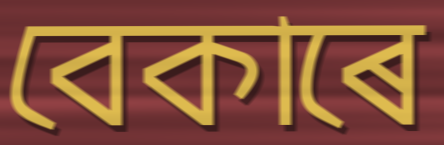
বেকাৰে